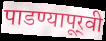
पाडण्यापूर्वी